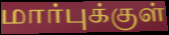
மார்புக்குள்